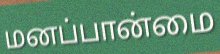
மனப்பான்மை